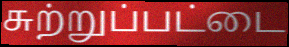
சுற்றுப்பட்டை